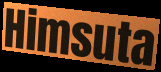
Himsuta